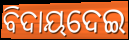
ବିଦାୟଦେଇ